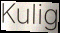
Kulig